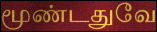
மூண்டதுவே